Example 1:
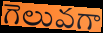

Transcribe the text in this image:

గెలువగా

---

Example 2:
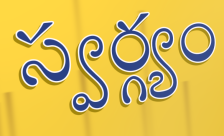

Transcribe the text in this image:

స్వర్గ్యం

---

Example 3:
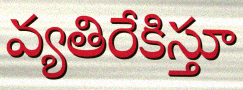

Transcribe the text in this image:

వ్యతిరేకిస్తూ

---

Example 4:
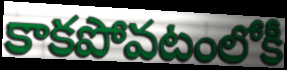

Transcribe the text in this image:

కాకపోవటంలోకీ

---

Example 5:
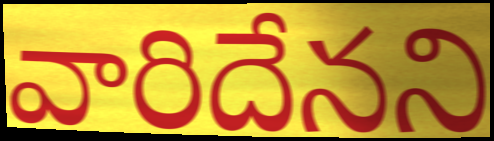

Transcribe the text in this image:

వారిదేనని